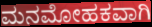
ಮನಮೋಹಕವಾಗಿ